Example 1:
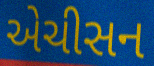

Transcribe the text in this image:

એચીસન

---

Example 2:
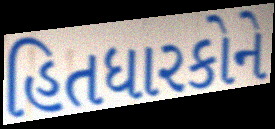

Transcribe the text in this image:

હિતધારકોને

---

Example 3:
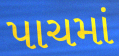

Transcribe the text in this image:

પાચમાં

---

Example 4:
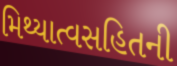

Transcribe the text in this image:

મિથ્યાત્વસહિતની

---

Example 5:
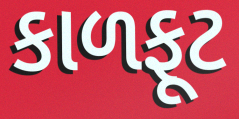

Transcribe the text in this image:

કાળફૂટ